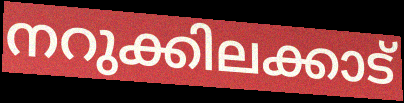
നറുക്കിലക്കാട്